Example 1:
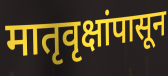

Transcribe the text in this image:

मातृवृक्षांपासून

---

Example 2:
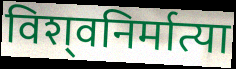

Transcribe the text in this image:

विश्वनिर्मात्या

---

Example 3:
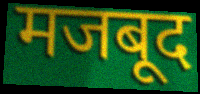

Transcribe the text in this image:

मजबूद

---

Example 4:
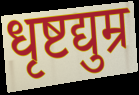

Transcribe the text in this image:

धृष्टद्युम्र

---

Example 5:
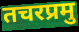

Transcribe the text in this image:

तचरप्रमु